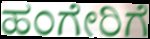
ಹಂಗೇರಿಗೆ